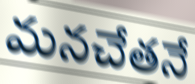
మనచేతనే